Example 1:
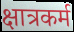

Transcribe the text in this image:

क्षात्रकर्म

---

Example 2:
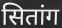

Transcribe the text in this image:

सितांग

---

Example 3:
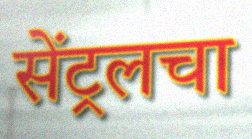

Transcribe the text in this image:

सेंट्रलचा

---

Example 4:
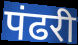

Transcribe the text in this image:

पंढरी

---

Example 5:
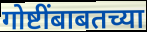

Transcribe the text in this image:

गोष्टींबाबतच्या